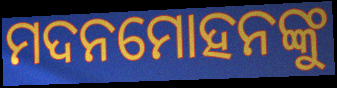
ମଦନମୋହନଙ୍କୁ